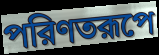
পরিণতরূপে